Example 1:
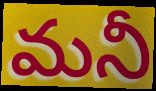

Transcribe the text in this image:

మనీ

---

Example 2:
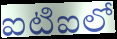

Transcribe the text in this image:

ఐటిఐలో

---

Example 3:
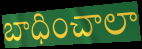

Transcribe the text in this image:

బాధించాలా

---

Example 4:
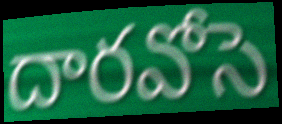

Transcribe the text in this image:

దారవోసె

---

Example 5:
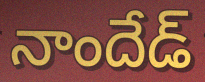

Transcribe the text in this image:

నాందేడ్